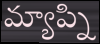
మ్యాప్ని